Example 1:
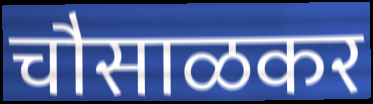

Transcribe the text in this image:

चौसाळकर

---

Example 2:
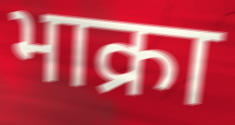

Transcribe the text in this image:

भाक्रा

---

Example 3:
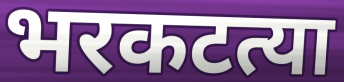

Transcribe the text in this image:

भरकटत्या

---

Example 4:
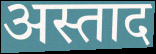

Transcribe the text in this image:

अस्ताद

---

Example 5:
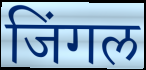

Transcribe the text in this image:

जिंगल